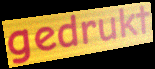
gedrukt